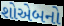
શોએબનો